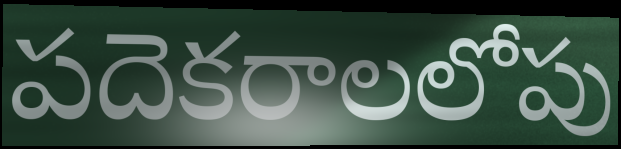
పదెకరాలలోపు